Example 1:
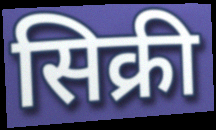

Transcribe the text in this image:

सिक्री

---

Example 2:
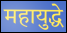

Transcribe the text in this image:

महायुद्धे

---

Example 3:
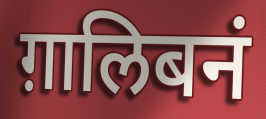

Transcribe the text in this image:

ग़ालिबनं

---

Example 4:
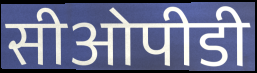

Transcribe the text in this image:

सीओपीडी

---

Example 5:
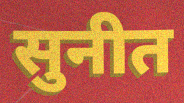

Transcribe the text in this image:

सुनीत